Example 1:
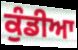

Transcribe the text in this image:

ਕੁੰਡੀਆ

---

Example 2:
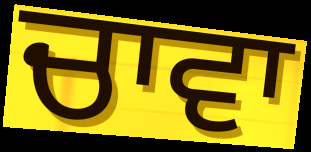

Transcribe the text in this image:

ਚਾਵਾ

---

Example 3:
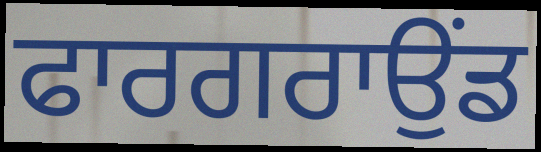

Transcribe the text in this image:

ਫਾਰਗਰਾਉਂਡ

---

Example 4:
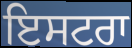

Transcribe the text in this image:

ਇਸਟਰਾ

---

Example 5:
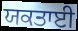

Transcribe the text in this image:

ਯਕਤਾਈ